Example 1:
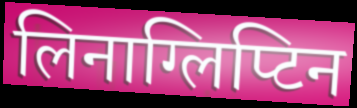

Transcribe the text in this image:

लिनाग्लिप्टिन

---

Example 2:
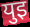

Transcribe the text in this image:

युइ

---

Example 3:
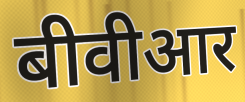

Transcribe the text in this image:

बीवीआर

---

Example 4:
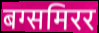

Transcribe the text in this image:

बग्समिरर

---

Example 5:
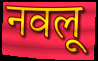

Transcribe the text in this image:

नवलू